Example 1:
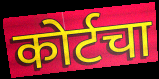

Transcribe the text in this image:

कोर्टचा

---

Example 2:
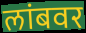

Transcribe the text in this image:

लांबवर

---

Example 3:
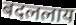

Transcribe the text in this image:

बदललाय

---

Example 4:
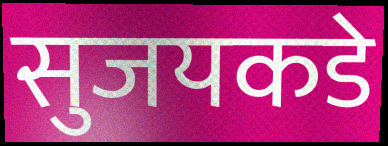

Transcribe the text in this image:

सुजयकडे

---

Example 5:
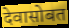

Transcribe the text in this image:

देवासोबत